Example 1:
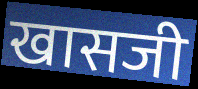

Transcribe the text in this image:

खासजी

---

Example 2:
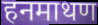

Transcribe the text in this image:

हनमाथण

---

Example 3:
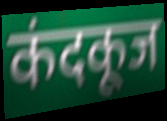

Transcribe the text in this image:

कंदकूज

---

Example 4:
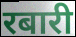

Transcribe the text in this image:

रबारी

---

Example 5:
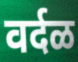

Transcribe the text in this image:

वर्दळ